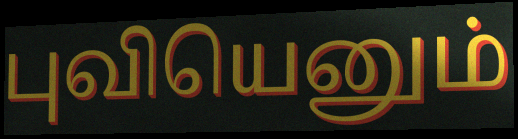
புவியெனும்